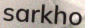
sarkho